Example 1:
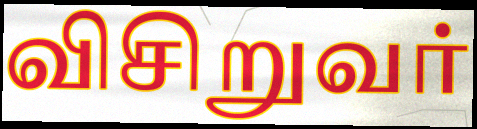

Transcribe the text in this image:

விசிறுவர்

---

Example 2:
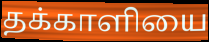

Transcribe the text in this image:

தக்காளியை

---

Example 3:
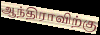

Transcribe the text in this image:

ஆந்திராவிற்கு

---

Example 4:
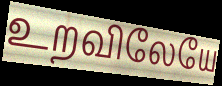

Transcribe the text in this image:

உறவிலேயே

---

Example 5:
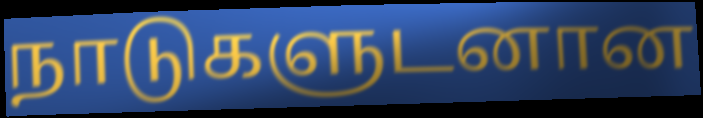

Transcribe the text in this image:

நாடுகளுடனான